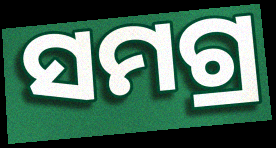
ସମଗ୍ର